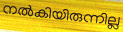
നൽകിയിരുന്നില്ല